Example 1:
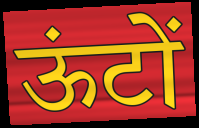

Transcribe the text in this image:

ऊंटों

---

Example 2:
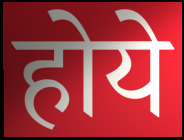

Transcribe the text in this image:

होये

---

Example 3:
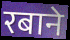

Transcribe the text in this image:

रबाने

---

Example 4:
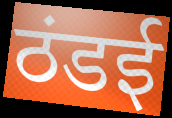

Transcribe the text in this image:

ठंडई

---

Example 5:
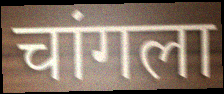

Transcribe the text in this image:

चांगला